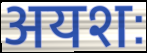
अयशः